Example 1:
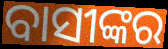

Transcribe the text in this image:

ବାସୀଙ୍କର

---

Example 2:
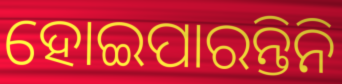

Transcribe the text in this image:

ହୋଇପାରନ୍ତିନି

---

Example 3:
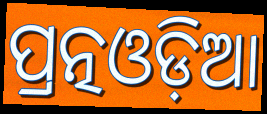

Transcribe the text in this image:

ପ୍ରତ୍ନଓଡ଼ିଆ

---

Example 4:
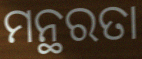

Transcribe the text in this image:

ମନ୍ଥରତା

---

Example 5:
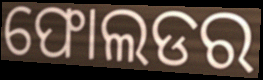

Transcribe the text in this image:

ଫୋଲଡର